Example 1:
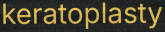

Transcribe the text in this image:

keratoplasty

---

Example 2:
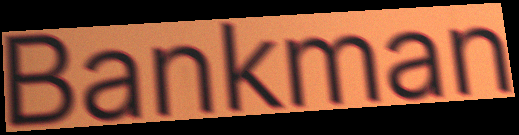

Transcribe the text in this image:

Bankman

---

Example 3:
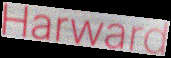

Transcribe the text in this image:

Harward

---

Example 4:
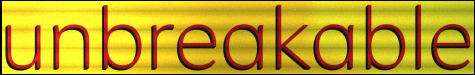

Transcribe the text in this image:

unbreakable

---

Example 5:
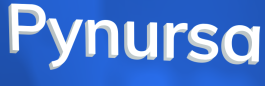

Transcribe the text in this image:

Pynursa